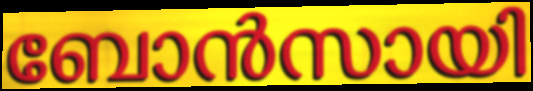
ബോൻസായി